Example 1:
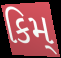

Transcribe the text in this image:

કિમ્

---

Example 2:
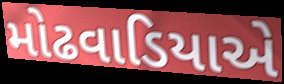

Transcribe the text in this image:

મોઢવાડિયાએ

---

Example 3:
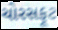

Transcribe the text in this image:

ચોરસફૂટ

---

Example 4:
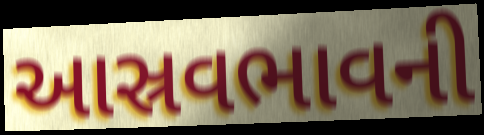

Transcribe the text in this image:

આસ્રવભાવની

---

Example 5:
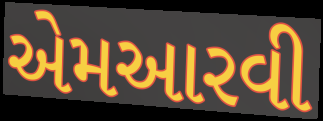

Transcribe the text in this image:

એમઆરવી